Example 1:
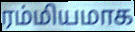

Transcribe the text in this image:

ரம்மியமாக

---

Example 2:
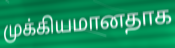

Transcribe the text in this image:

முக்கியமானதாக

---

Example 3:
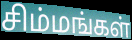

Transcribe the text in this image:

சிம்மங்கள்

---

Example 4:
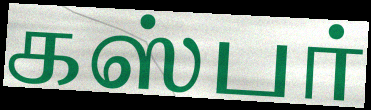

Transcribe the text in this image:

கஸ்பர்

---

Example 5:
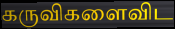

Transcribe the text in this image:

கருவிகளைவிட